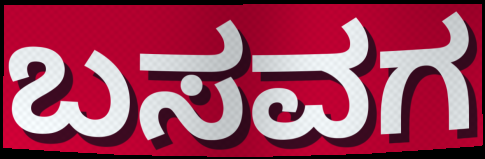
ಬಸವಗ